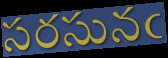
సరసునఁ